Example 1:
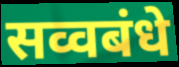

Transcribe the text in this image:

सव्वबंधे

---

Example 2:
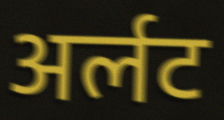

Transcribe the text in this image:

अर्लट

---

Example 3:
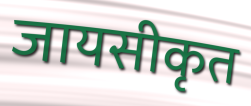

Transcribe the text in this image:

जायसीकृत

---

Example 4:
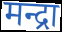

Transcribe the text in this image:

मन्द्रा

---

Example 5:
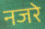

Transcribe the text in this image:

नजरे